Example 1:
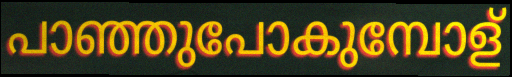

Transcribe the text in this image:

പാഞ്ഞുപോകുമ്പോള്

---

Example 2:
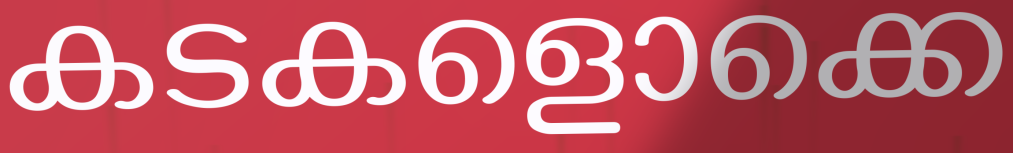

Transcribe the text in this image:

കടകളൊക്കെ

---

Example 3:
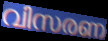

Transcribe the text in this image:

വിസരണ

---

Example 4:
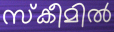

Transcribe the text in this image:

സ്കീമിൽ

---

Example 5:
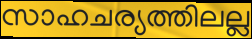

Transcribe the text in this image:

സാഹചര്യത്തിലല്ല